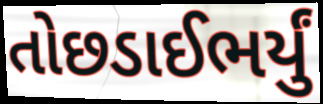
તોછડાઈભર્યું